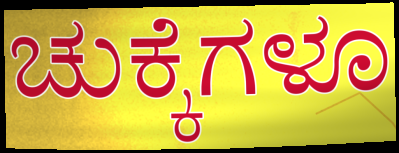
ಚುಕ್ಕೆಗಳೂ